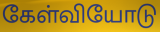
கேள்வியோடு